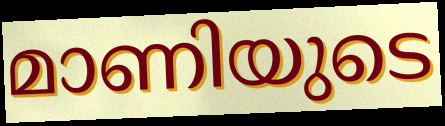
മാണിയുടെ